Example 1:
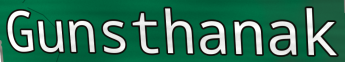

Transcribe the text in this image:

Gunsthanak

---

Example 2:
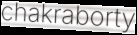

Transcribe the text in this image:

chakraborty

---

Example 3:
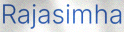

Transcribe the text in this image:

Rajasimha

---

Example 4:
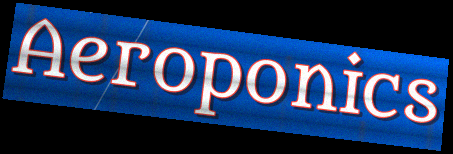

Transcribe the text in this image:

Aeroponics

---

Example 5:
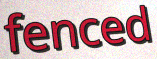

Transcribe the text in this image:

fenced